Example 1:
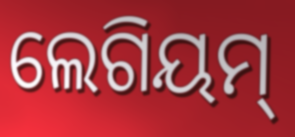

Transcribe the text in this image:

ଲେଗିୟମ୍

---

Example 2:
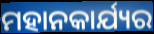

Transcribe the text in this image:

ମହାନକାର୍ଯ୍ୟର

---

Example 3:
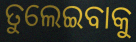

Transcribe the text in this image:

ତୁଲେଇବାକୁ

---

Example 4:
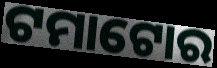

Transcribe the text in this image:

ଟମାଟୋର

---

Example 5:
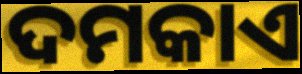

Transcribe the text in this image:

ଦମକାଏ